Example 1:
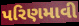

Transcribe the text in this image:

પરિણમાવી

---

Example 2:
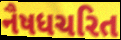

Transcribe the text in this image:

નૈષધચરિત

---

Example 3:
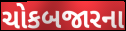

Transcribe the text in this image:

ચોકબજારના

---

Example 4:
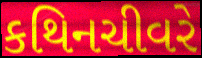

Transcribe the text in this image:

કથિનચીવરે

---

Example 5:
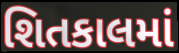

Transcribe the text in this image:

શિતકાલમાં